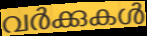
വർക്കുകൾ